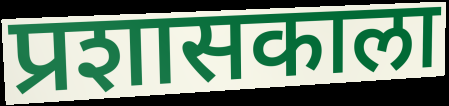
प्रशासकाला